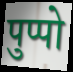
पुप्पो